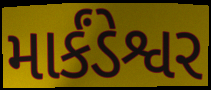
માર્કંડેશ્વર